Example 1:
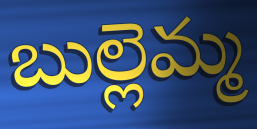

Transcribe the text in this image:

బుల్లెమ్మ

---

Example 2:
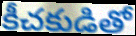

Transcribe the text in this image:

కీచకుడితో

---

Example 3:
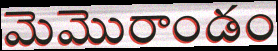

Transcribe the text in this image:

మెమొరాండం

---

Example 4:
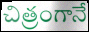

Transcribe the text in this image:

చిత్రంగానే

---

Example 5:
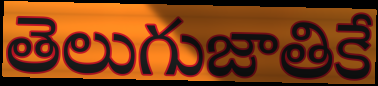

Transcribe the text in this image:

తెలుగుజాతికే